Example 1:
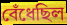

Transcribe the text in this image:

বেঁধেছিল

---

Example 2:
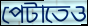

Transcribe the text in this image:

পেটাতেও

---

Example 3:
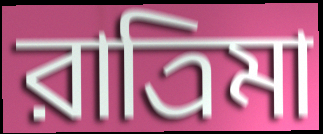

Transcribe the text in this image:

রাত্রিমা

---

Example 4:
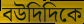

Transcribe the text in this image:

বউদিদিকে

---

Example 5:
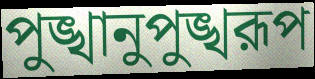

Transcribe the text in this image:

পুঙ্খানুপুঙ্খরূপ